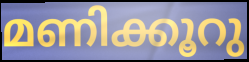
മണിക്കൂറു